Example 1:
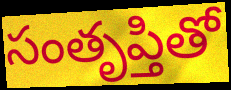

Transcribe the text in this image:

సంతృప్తితో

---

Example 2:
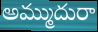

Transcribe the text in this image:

అమ్ముదురా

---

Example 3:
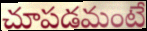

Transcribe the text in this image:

చూపడమంటే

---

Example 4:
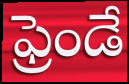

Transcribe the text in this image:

ఫ్రెండే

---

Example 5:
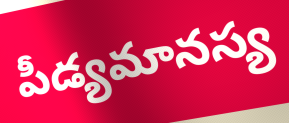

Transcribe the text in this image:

పీడ్యమానస్య